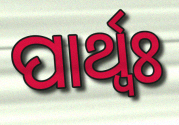
ପାର୍ଥ୍ବଃ